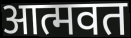
आत्मवत